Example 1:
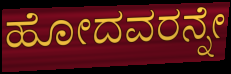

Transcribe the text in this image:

ಹೋದವರನ್ನೇ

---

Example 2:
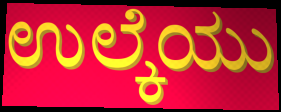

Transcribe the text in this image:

ಉಲ್ಕೆಯು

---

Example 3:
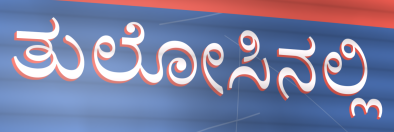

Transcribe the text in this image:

ತುಲೋಸಿನಲ್ಲಿ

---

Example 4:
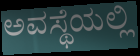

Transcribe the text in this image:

ಅವಸ್ಥೆಯಲ್ಲಿ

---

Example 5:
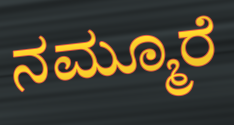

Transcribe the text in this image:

ನಮ್ಮೂರೆ